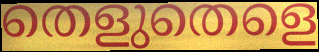
തെളുതെളെ